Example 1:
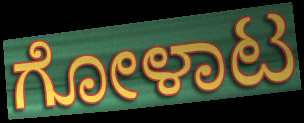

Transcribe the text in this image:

ಗೋಳಾಟ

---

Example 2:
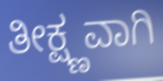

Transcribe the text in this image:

ತೀಕ್ಷ್ಣವಾಗಿ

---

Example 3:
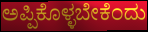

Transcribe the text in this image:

ಅಪ್ಪಿಕೊಳ್ಳಬೇಕೆಂದು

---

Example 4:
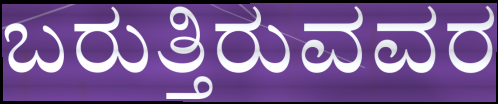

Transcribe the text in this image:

ಬರುತ್ತಿರುವವರ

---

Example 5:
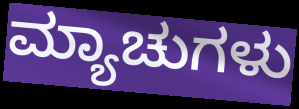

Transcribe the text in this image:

ಮ್ಯಾಚುಗಳು